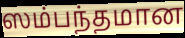
ஸம்பந்தமான